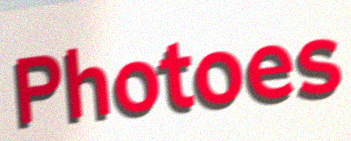
Photoes